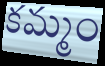
కమ్మం